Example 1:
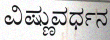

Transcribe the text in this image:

ವಿಷ್ಣುವರ್ಧನ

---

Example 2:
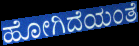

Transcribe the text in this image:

ಹೋಗಿದೆಯಂತೆ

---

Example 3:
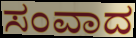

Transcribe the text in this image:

ಸಂವಾದ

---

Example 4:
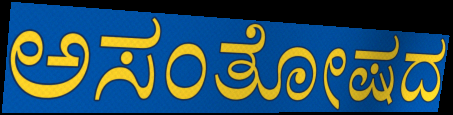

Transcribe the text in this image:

ಅಸಂತೋಷದ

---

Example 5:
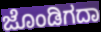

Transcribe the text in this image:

ಜೊಂಡಿಗದಾ